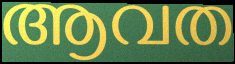
ആവത